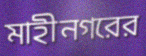
মাহীনগরের